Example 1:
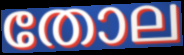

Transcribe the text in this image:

തോല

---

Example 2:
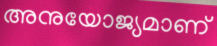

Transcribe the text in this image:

അനുയോജ്യമാണ്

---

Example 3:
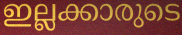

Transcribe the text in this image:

ഇല്ലക്കാരുടെ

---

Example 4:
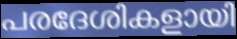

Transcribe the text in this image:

പരദേശികളായി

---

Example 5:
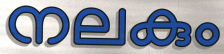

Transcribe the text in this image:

നലകും